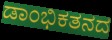
ಡಾಂಭಿಕತನದ